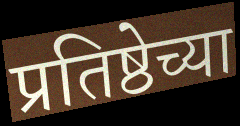
प्रतिष्ठेच्या